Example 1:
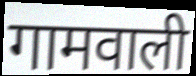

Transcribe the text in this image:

गामवाली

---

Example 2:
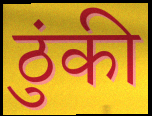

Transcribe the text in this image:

ठुंकी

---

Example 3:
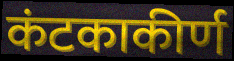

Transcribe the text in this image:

कंटकाकीर्ण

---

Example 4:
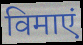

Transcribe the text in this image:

विमाएं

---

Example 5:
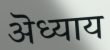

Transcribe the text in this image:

ऄध्याय